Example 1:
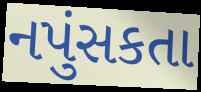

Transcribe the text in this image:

નપુંસકતા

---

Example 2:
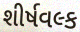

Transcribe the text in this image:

શીર્ષવલ્ક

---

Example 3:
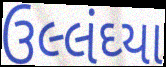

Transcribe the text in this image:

ઉલ્લંઘ્યા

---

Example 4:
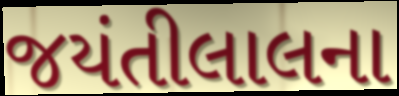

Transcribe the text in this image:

જયંતીલાલના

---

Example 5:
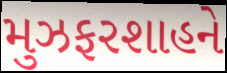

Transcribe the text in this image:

મુઝફરશાહને